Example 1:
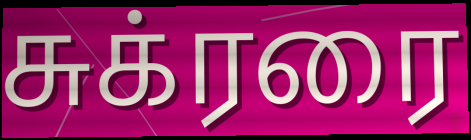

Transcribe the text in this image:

சுக்ரரை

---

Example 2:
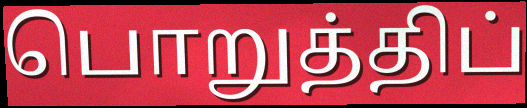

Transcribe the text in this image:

பொறுத்திப்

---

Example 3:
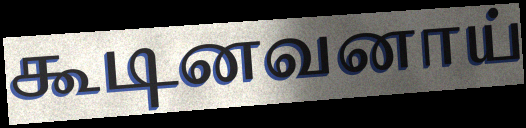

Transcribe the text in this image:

கூடினவனாய்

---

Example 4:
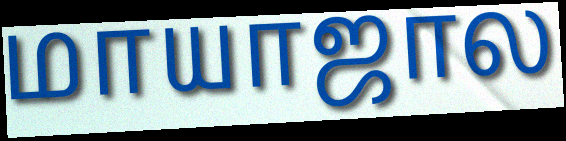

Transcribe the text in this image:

மாயாஜால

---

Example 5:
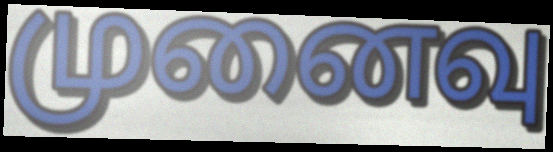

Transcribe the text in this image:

முனைவு